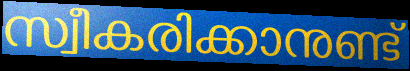
സ്വീകരിക്കാനുണ്ട്